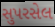
સુપરસેલ